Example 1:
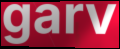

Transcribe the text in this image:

garv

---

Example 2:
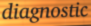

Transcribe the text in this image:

diagnostic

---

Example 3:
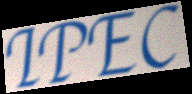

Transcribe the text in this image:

IPEC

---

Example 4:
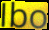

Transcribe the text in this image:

Ibo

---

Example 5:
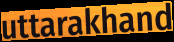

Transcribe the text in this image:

uttarakhand